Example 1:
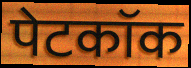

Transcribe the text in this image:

पेटकॉक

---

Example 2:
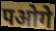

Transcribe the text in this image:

पओगे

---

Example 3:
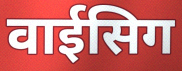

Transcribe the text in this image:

वाईसिग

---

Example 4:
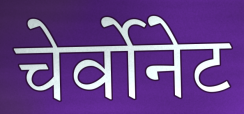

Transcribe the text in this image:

चेर्वोनेट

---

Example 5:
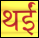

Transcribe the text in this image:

थईं